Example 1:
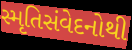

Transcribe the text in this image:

સ્મૃતિસંવેદનોથી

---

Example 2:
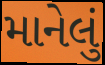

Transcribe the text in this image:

માનેલું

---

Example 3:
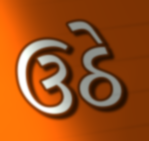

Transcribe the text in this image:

ઉઠે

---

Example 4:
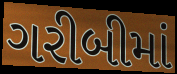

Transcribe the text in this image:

ગરીબીમાં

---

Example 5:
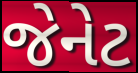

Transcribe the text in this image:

જેનેટ